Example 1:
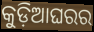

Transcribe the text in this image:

କୁଡ଼ିଆଘରର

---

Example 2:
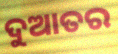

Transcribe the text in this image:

ଦୁଆତର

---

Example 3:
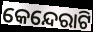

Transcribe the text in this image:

କେନ୍ଦେରାଟି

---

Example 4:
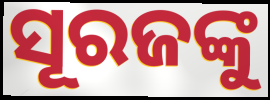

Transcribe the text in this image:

ସୂରଜଙ୍କୁ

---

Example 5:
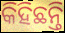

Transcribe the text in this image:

କିହିଛନ୍ତି